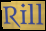
Rill